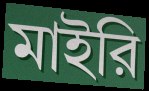
মাইরি